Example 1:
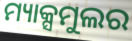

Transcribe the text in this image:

ମ୍ୟାକ୍ସମୁଲର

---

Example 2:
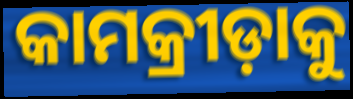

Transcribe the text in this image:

କାମକ୍ରୀଡ଼ାକୁ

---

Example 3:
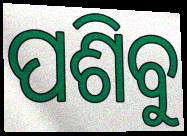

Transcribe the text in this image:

ପଶିବୁ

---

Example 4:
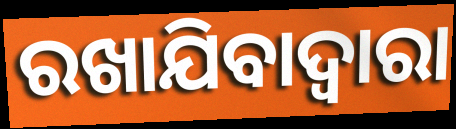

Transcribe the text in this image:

ରଖାଯିବାଦ୍ଵାରା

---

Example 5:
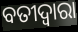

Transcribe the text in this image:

ବତୀଦ୍ୱାରା